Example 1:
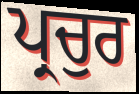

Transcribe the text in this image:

ਪ੍ਰਚੁਰ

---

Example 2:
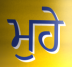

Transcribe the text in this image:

ਮੁਹੇ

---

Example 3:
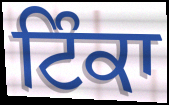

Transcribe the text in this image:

ਟਿੰਕਾ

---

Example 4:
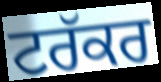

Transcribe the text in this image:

ਟਰੱਕਰ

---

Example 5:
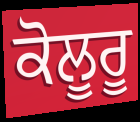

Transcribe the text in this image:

ਕੋਲੂਰੂ